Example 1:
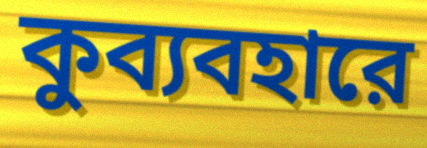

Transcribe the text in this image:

কুব্যবহারে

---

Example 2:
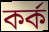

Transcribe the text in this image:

কর্ক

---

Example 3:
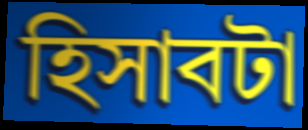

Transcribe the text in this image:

হিসাবটা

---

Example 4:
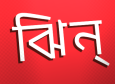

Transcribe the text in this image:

ঝিন্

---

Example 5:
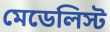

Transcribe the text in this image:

মেডেলিস্ট